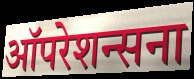
ऑपरेशन्सना